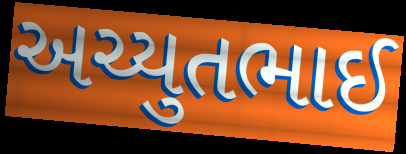
અચ્યુતભાઈ